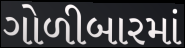
ગોળીબારમાં